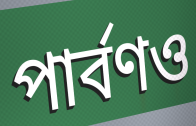
পার্বণও